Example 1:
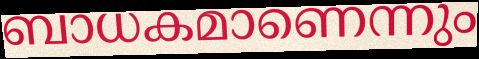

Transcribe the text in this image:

ബാധകമാണെന്നും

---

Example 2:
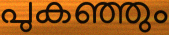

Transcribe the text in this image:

പുകഞ്ഞും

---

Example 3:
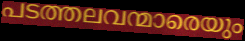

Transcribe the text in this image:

പടത്തലവന്മാരെയും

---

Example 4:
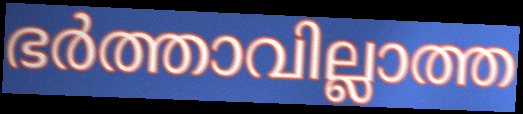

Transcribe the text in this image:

ഭർത്താവില്ലാത്ത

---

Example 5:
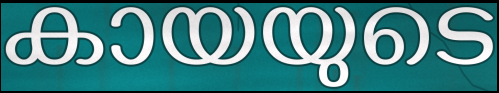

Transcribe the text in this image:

കായയുടെ